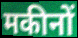
मकीनों